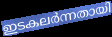
ഇടകലർന്നതായി